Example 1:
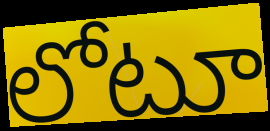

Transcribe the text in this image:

లోటూ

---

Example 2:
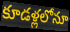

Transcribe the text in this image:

కూడళ్లలోనూ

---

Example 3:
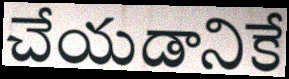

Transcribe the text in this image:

చేయడానికే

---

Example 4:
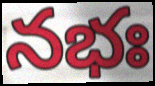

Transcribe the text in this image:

నభః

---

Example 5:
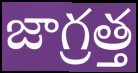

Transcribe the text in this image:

జాగ్రత్త